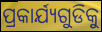
ପ୍ରକାର୍ଯ୍ୟଗୁଡିକୁ